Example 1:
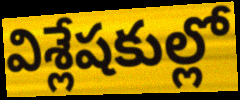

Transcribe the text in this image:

విశ్లేషకుల్లో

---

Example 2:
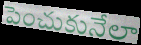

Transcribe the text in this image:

పెంచుకునేలా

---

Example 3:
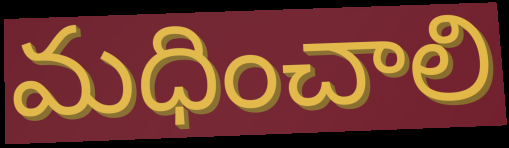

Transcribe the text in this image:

మధించాలి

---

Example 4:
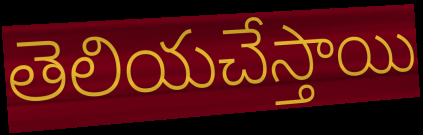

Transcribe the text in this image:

తెలియచేస్తాయి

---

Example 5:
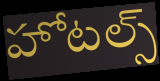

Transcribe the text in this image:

హోటల్స్